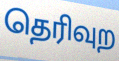
தெரிவுற